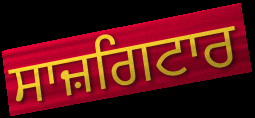
ਸਾਜ਼ਗਿਟਾਰ